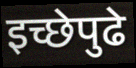
इच्छेपुढे